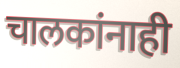
चालकांनाही